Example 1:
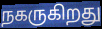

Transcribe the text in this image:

நகருகிறது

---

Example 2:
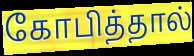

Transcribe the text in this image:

கோபித்தால்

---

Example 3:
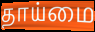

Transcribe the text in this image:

தாய்மை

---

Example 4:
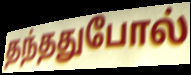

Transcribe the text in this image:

தந்ததுபோல்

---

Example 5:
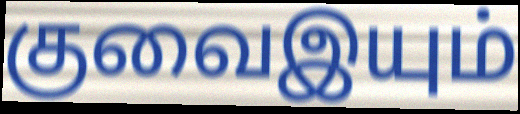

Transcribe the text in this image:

குவைஇயும்